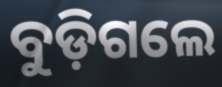
ବୁଡ଼ିଗଲେ